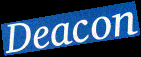
Deacon